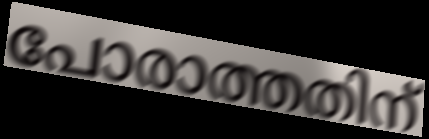
പോരാത്തതിന്